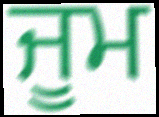
ਜੂਮ